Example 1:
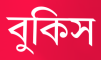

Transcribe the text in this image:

বুকিস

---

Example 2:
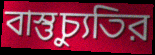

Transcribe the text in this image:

বাস্তুচ্যুতির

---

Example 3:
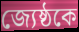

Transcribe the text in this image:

জ্যেষ্ঠকে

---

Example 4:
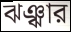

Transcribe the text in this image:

ঝঞ্ঝার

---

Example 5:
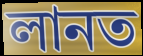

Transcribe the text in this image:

লানত